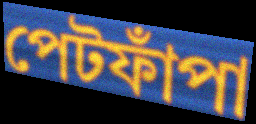
পেটফাঁপা